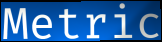
Metric